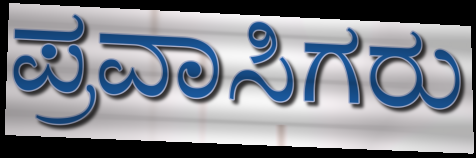
ಪ್ರವಾಸಿಗರು